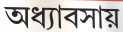
অধ্যাবসায়